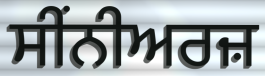
ਸੀਂਨੀਅਰਜ਼